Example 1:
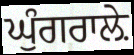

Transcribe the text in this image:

ਘੁੰਗਰਾਲ਼ੇ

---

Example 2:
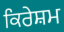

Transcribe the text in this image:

ਕਿਰੇਸ਼ਮ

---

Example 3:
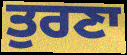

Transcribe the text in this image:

ਤੁਰਣਾ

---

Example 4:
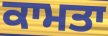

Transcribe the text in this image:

ਕਾਮਤਾ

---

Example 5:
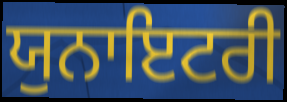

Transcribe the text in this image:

ਯੁਨਾਇਟਰੀ